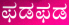
ಫಡಫಡ